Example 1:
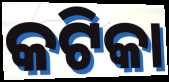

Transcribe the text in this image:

କଟିକା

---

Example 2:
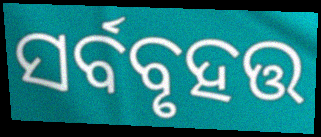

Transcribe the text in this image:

ସର୍ବବୃହତ୍ତ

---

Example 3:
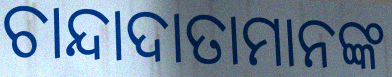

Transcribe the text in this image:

ଚାନ୍ଦାଦାତାମାନଙ୍କ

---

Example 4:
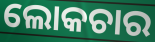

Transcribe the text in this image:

ଲୋକଚାର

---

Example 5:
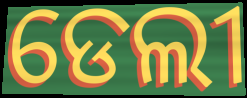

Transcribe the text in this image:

ଡେଲୀ